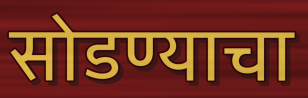
सोडण्याचा